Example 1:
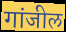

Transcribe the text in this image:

गांजील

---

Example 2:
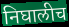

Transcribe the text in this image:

निघालीच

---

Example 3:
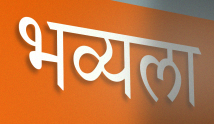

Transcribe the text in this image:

भव्यला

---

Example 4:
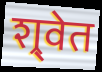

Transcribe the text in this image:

श्र्वेत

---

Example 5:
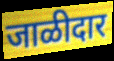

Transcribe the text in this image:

जाळीदार